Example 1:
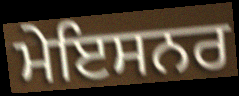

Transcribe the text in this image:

ਮੇਇਸਨਰ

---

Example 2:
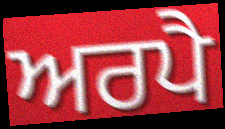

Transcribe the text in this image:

ਅਰਪੈ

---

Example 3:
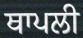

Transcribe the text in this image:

ਥਾਪਲੀ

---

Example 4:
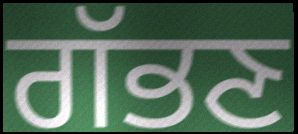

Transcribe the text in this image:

ਗੱਭਣ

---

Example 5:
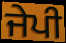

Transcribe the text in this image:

ਜੇਪੀ